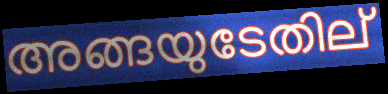
അങ്ങയുടേതില്